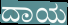
ದಾಯ